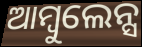
ଆମ୍ବୁଲେନ୍ସ